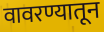
वावरण्यातून